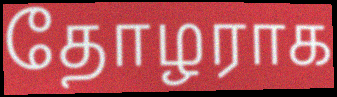
தோழராக